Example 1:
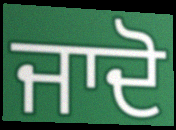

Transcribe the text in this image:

ਜਾਦੋ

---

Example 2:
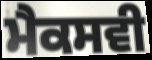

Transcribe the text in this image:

ਮੈਕਸਵੀ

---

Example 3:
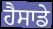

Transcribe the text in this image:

ਹੈਸਾਡੇ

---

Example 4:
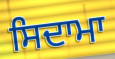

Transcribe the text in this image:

ਸਿਦਾਮਾ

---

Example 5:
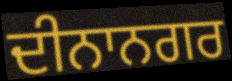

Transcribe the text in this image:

ਦੀਨਾਨਗਰ